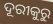
ଦୂରୀକୁରୁ